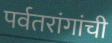
पर्वतरांगांची